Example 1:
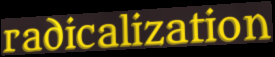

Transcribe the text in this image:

radicalization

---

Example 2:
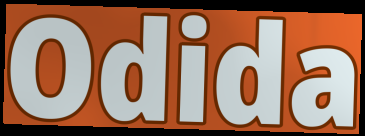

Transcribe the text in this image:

Odida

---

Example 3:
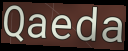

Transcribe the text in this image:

Qaeda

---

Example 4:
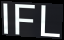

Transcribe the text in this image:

IFL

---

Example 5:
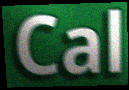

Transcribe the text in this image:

Cal